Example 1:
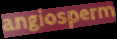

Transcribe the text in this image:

angiosperm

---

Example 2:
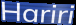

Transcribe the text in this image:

Hariri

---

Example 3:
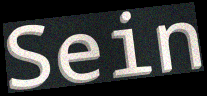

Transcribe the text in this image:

Sein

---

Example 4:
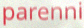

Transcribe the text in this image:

parenni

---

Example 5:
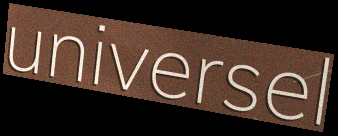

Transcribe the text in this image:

universel